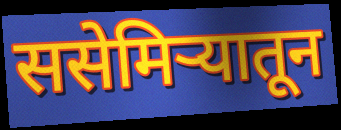
ससेमिऱ्यातून